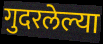
गुदरलेल्या